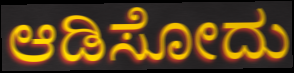
ಆಡಿಸೋದು